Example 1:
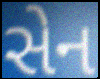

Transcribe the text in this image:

સેન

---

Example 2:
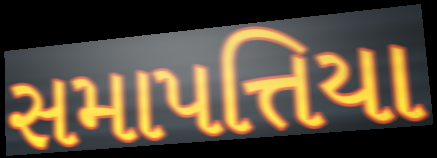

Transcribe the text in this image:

સમાપત્તિયા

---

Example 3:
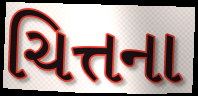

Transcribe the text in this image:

ચિત્તના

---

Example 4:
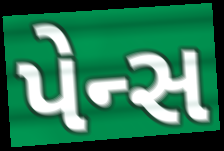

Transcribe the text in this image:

પેન્સ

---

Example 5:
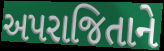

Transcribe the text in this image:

અપરાજિતાને